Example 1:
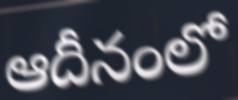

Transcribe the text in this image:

ఆదీనంలో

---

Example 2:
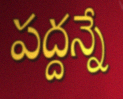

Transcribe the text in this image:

పద్దన్నే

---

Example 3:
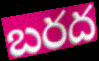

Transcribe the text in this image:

బరద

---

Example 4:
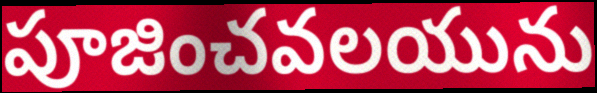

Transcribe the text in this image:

పూజించవలయును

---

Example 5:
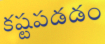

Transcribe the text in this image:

కష్టపడడం